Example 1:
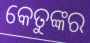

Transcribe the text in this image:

କେତୁଙ୍କର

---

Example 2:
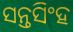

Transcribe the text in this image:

ସନ୍ତସିଂହ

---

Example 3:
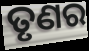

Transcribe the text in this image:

ତୃଣର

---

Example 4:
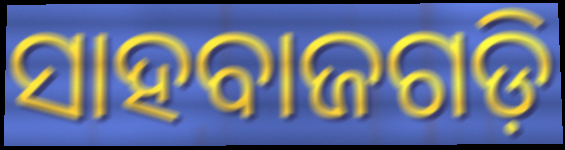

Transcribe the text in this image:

ସାହବାଜଗଡ଼ି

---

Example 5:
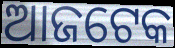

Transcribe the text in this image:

ଆଜଟେକ